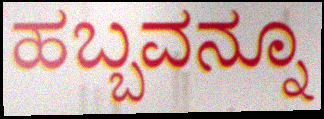
ಹಬ್ಬವನ್ನೂ